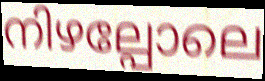
നിഴല്പോലെ